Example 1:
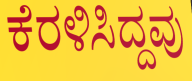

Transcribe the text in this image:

ಕೆರಳಿಸಿದ್ದವು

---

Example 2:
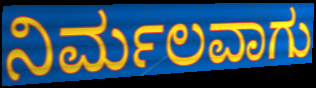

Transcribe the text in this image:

ನಿರ್ಮಲವಾಗು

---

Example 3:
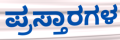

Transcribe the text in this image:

ಪ್ರಸ್ತಾರಗಳ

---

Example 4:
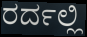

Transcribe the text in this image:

ರರ್ದಲ್ಲಿ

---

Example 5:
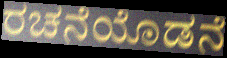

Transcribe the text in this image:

ರಚನೆಯೊಡನೆ